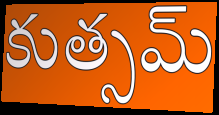
కుత్సమ్